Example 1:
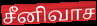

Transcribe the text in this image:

சீனிவாச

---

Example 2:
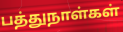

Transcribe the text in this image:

பத்துநாள்கள்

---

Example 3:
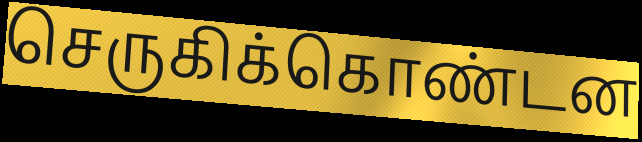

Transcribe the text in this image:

செருகிக்கொண்டன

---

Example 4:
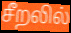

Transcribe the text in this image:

சீறலில்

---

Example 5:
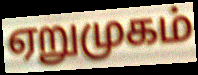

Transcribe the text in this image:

ஏறுமுகம்